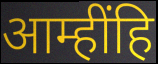
आम्हींहि